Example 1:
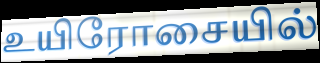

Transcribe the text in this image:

உயிரோசையில்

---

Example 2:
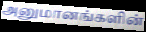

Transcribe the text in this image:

அனுமானங்களின்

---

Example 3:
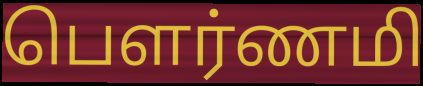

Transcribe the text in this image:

பௌர்ணமி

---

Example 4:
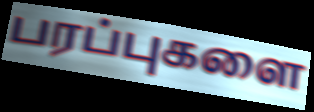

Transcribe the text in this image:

பரப்புகளை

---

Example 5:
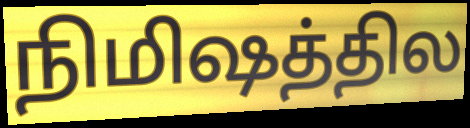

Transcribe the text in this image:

நிமிஷத்தில